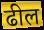
ढील